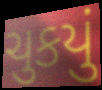
ચુકયું